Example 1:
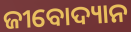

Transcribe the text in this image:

ଜୀବୋଦ୍ୟାନ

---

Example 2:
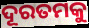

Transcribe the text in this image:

ଦୂରତମକୁ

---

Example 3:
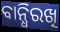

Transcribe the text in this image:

ବାନ୍ଧିରଖି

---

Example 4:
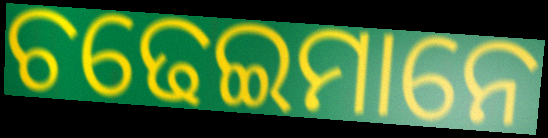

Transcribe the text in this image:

ଚଢେଇମାନେ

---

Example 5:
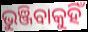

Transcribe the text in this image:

ଭୁଞ୍ଜିବାକୁହିଁ